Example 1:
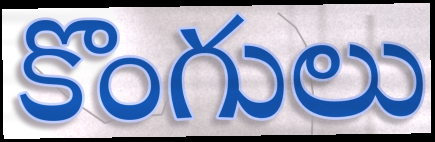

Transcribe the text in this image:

కొంగులు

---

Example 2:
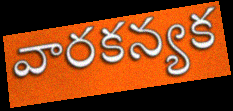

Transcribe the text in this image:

వారకన్యక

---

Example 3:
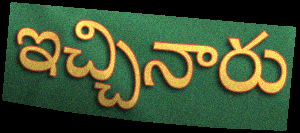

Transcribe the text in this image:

ఇచ్చినారు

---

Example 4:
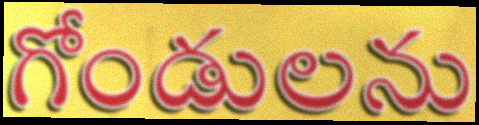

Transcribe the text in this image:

గోండులను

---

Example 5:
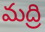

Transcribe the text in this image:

మద్రి